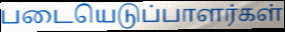
படையெடுப்பாளர்கள்